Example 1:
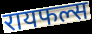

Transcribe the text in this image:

रायफल्स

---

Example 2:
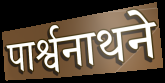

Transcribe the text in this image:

पार्श्वनाथने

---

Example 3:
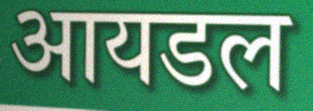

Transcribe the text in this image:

आयडल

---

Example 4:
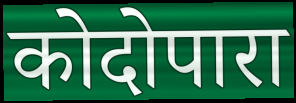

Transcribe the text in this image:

कोदोपारा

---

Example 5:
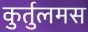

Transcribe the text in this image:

कुर्तुलमस